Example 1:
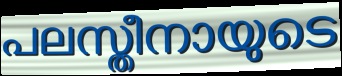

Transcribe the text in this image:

പലസ്തീനായുടെ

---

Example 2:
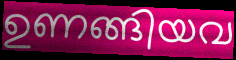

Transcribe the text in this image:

ഉണങ്ങിയവ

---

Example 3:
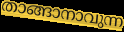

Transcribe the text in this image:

താങ്ങാനാവുന്ന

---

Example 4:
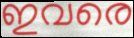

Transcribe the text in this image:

ഇവരെ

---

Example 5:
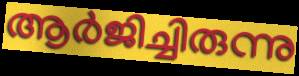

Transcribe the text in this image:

ആർജിച്ചിരുന്നു